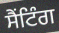
ਸੈਂਟਿੰਗ